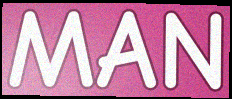
MAN